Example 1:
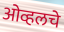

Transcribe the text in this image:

ओव्हलचे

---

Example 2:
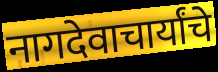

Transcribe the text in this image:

नागदेवाचार्यांचे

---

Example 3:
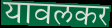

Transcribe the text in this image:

यावलकर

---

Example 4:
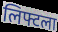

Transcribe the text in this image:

लिफ्टला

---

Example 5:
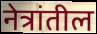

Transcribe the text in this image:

नेत्रांतील